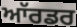
ਆੱਰਡਰ